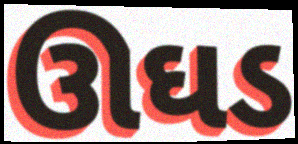
ઊઘડ